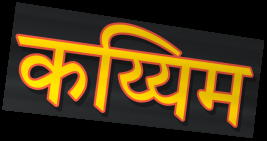
कय्यिम